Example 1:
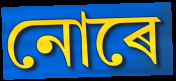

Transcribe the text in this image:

নোৰে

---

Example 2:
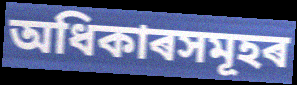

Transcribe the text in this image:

অধিকাৰসমূহৰ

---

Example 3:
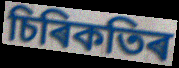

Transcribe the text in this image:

চিৰিকতিৰ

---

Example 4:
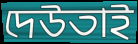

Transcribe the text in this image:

দেউতাই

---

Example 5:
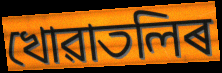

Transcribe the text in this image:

খোৱাতলিৰ